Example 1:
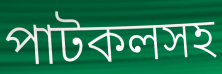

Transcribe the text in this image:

পাটকলসহ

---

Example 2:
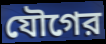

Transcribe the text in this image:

যৌগের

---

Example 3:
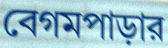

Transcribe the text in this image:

বেগমপাড়ার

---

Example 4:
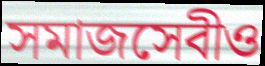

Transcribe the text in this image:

সমাজসেবীও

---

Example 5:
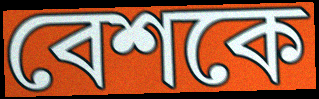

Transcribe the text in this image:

বেশকে